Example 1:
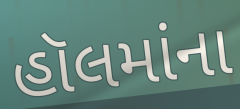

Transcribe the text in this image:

હૉલમાંના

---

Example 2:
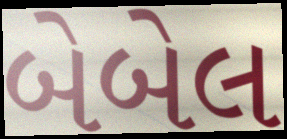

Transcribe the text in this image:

બેબેલ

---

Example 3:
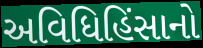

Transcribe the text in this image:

અવિધિહિંસાનો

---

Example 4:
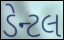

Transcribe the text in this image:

ડેન્ટલ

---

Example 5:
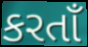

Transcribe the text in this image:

કરતાઁ